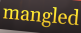
mangled